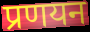
प्रणयन